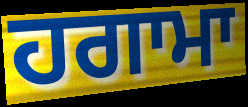
ਹਗਾਮਾ